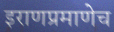
इराणप्रमाणेच